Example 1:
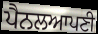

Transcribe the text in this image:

ਪੈਨਲਆਪਣੀ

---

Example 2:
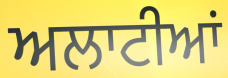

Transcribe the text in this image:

ਅਲਾਟੀਆਂ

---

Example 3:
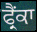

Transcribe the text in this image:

ਫ੍ਰੈਂਕਾ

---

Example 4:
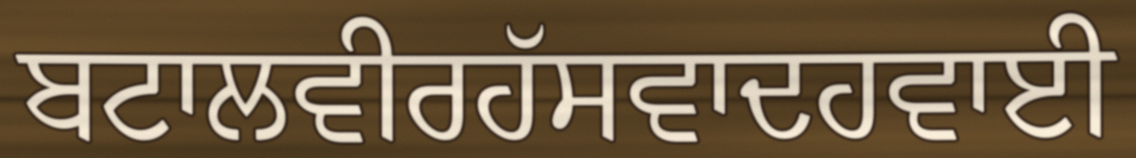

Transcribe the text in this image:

ਬਟਾਲਵੀਰਹੱਸਵਾਦਹਵਾਈ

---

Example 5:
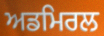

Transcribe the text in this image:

ਅਡਮਿਰਲ